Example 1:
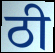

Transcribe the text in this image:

ठी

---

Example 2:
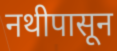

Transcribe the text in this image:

नथीपासून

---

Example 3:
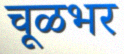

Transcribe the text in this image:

चूळभर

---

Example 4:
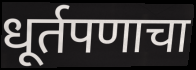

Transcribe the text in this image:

धूर्तपणाचा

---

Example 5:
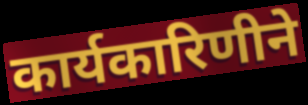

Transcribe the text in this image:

कार्यकारिणीने